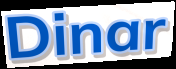
Dinar